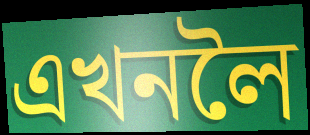
এখনলৈ